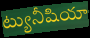
ట్యునీషియా